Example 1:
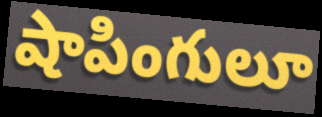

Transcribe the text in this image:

షాపింగులూ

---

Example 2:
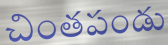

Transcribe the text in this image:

చింతపండు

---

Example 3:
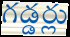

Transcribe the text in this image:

గడ్డర్లు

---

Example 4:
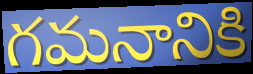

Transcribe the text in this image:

గమనానికి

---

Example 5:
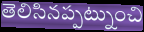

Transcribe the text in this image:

తెలిసినప్పట్నుంచి